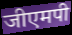
जीएमपी